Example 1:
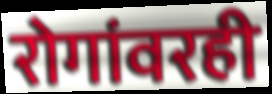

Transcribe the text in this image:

रोगांवरही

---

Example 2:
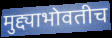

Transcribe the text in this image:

मुद्द्याभोवतीच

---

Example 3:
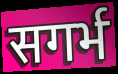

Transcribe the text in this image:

सगर्भ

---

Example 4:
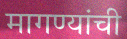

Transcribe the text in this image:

मागण्यांची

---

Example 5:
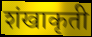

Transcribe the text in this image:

शंखाकृती